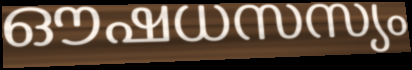
ഔഷധസസ്യം